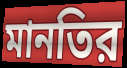
মানতির